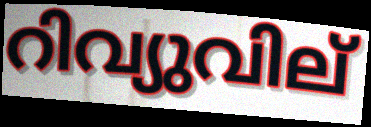
റിവ്യുവില്